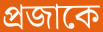
প্রজাকে